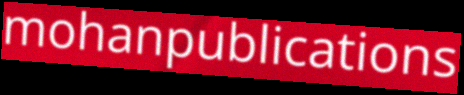
mohanpublications